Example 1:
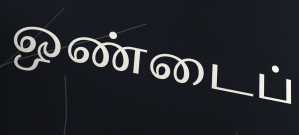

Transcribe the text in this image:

ஒண்டைப்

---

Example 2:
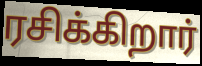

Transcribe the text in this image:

ரசிக்கிறார்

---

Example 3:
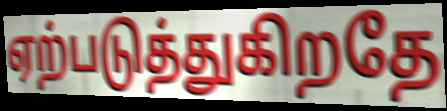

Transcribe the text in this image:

ஏற்படுத்துகிறதே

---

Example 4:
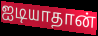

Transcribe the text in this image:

ஐடியாதான்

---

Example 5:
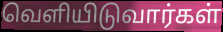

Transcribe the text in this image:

வெளியிடுவார்கள்